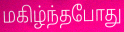
மகிழ்ந்தபோது